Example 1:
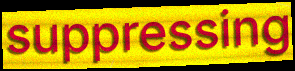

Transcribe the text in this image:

suppressing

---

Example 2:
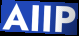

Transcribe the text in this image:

AIIP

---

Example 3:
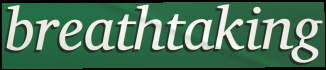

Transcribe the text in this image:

breathtaking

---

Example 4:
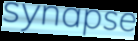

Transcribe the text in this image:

synapse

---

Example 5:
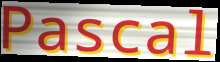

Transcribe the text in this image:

Pascal